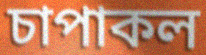
চাপাকল